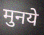
मुनये